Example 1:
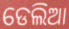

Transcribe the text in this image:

ଡେଲିଆ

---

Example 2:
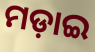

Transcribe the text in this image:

ମଡ଼ାଇ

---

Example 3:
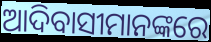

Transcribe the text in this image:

ଆଦିବାସୀମାନଙ୍କରେ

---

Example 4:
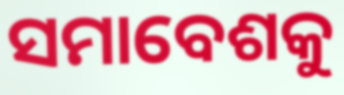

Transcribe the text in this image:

ସମାବେଶକୁ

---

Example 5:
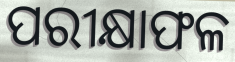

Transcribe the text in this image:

ପରୀକ୍ଷାଫଳ